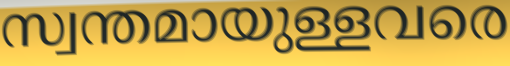
സ്വന്തമായുള്ളവരെ